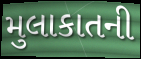
મુલાકાતની